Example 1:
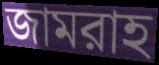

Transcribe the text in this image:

জামরাহ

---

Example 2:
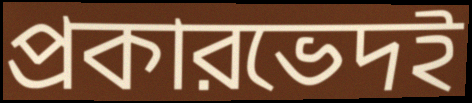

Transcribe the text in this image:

প্রকারভেদই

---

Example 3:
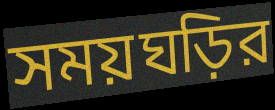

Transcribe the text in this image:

সময়ঘড়ির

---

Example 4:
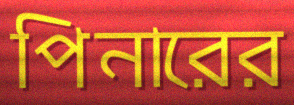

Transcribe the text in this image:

পিনারের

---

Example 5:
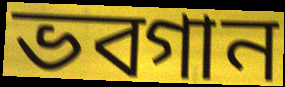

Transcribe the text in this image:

ভবগান